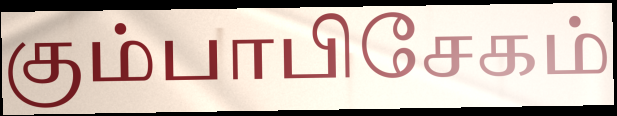
கும்பாபிசேகம்